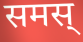
समस्